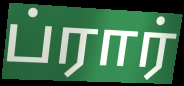
ப்ரார்